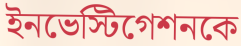
ইনভেস্টিগেশনকে